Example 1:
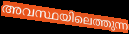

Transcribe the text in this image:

അവസ്ഥയിലെത്തുന്ന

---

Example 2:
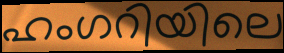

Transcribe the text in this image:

ഹംഗറിയിലെ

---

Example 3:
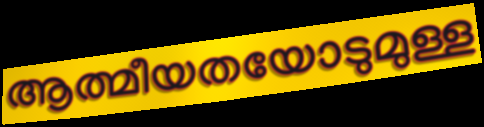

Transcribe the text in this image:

ആത്മീയതയോടുമുള്ള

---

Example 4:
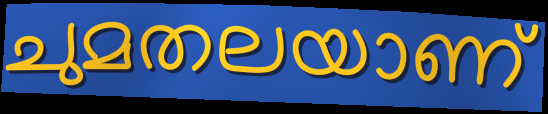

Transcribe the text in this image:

ചുമതലയാണ്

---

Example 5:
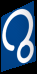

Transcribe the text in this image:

റു